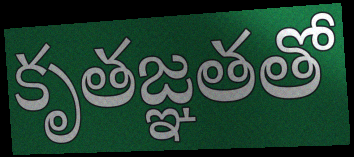
కృతజ్ఞతతో